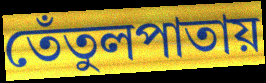
তেঁতুলপাতায়